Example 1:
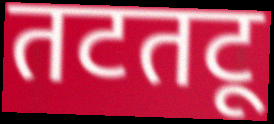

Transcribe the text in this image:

तटतटू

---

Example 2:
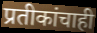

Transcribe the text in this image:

प्रतीकांचाही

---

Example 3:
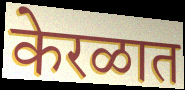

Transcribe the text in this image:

केरळात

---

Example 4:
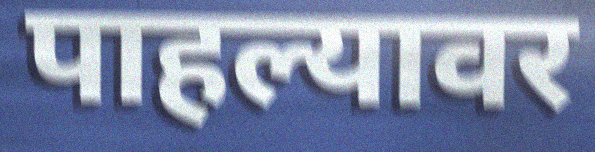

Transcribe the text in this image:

पाहल्यावर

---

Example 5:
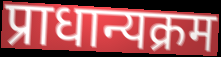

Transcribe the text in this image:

प्राधान्यक्रम